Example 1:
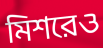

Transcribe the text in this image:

মিশরেও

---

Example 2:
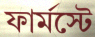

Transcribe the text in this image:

ফার্মস্টে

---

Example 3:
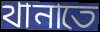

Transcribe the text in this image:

থানাতে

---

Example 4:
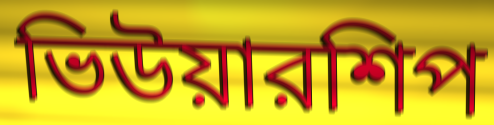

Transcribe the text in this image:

ভিউয়ারশিপ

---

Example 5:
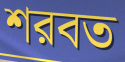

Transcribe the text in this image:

শরবত